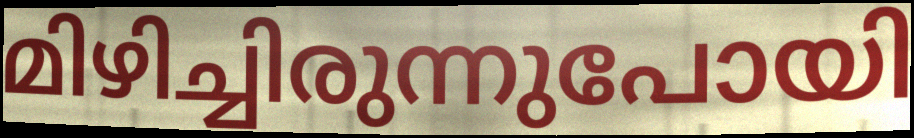
മിഴിച്ചിരുന്നുപോയി